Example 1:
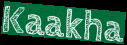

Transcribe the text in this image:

Kaakha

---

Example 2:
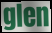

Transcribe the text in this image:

glen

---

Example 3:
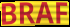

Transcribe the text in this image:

BRAF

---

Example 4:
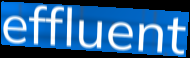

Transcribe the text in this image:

effluent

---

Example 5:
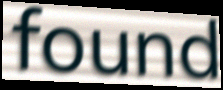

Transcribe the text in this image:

found